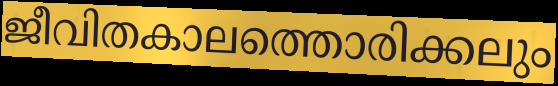
ജീവിതകാലത്തൊരിക്കലും